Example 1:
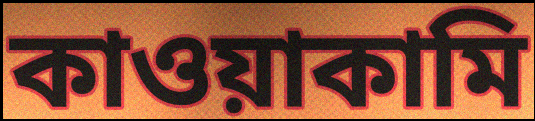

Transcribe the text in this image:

কাওয়াকামি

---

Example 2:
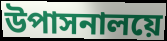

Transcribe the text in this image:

উপাসনালয়ে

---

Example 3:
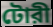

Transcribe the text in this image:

টোরী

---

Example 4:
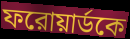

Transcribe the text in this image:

ফরোয়ার্ডকে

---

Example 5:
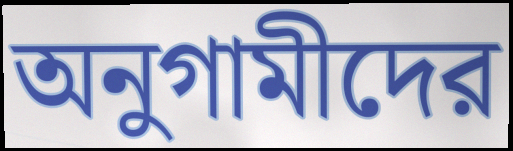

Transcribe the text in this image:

অনুগামীদের